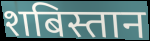
शबिस्तान